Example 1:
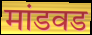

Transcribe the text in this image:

मांडवड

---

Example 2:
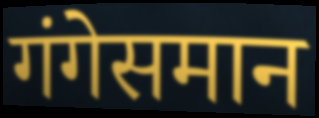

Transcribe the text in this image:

गंगेसमान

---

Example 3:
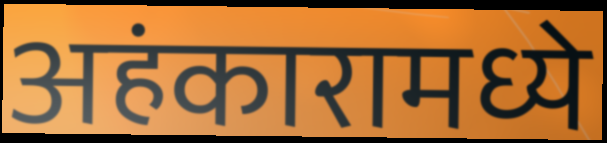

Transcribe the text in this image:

अहंकारामध्ये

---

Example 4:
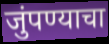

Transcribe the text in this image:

जुंपण्याचा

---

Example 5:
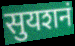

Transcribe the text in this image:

सुयशनं